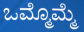
ಒಮ್ಮೊಮ್ಮೆ